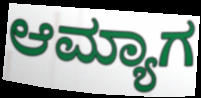
ಆಮ್ಯಾಗ